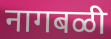
नागबळी